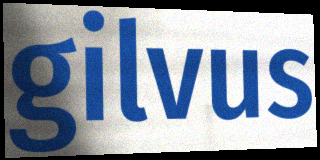
gilvus